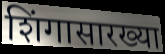
शिंगासारख्या